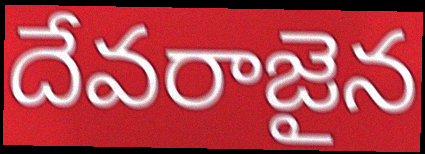
దేవరాజైన